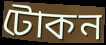
টোকন